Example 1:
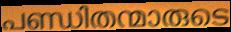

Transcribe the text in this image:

പണ്ഡിതന്മാരുടെ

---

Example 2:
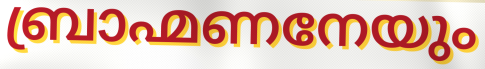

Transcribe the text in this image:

ബ്രാഹ്മണനേയും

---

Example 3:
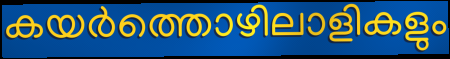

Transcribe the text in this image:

കയർത്തൊഴിലാളികളും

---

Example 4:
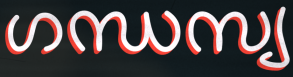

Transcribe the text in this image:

ഗന്ധസ്യ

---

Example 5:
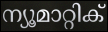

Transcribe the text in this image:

ന്യൂമാറ്റിക്